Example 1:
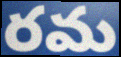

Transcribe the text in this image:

రమ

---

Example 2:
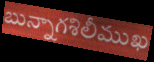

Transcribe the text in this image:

బున్నాగశిలీముఖ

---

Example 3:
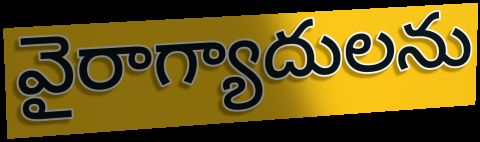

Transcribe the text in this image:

వైరాగ్యాదులను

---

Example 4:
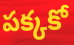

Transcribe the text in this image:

పక్కకో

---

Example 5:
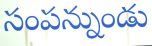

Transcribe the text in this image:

సంపన్నుండు